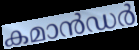
കമാൻഡർ